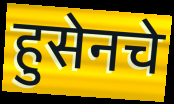
हुसेनचे